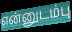
என்னுடம்பு